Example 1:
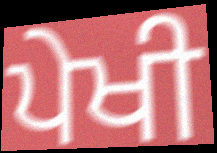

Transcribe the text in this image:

ਪੇਖੀ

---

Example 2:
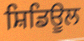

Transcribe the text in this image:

ਸ਼ਿਡਿਊਲ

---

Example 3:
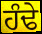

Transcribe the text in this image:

ਹੰਢੇ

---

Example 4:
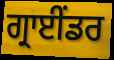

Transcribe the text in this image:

ਗ੍ਰਾਈਂਡਰ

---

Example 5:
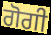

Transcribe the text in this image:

ਗੋਗੀ